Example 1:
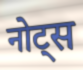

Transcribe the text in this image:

नोट्स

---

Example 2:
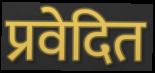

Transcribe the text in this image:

प्रवेदित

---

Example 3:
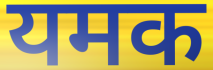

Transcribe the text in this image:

यमक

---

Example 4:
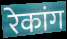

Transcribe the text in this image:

रेकांग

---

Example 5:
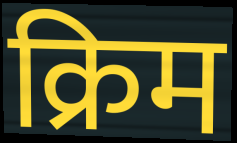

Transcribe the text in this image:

क्रिम